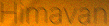
Himavan